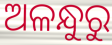
ଅଳନ୍ଧୁରୁ